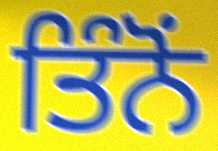
ਤਿੰਨੋਂ